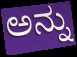
ಅನ್ನು